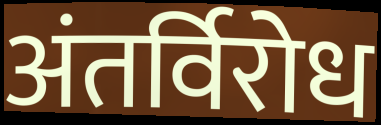
अंतर्विरोध